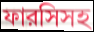
ফারসিসহ